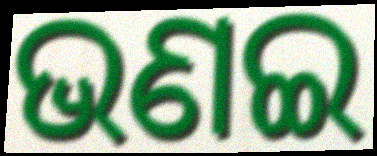
ଭଣଇ